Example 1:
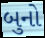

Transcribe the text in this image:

બુનો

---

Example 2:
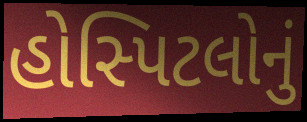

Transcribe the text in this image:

હોસ્પિટલોનું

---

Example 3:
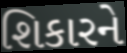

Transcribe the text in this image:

શિકારને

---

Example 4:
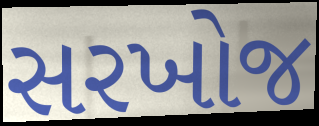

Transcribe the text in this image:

સરખોજ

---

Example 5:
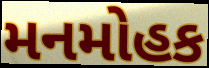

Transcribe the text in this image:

મનમોહક